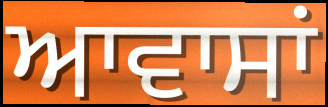
ਆਵਾਸਾਂ